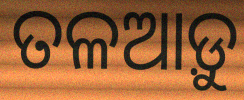
ତଳଆଡ଼ୁ